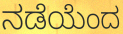
ನಡೆಯೆಂದ